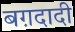
बग़दादी